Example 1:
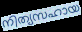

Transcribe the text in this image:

നിത്യസഹായ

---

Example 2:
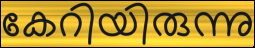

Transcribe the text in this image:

കേറിയിരുന്നു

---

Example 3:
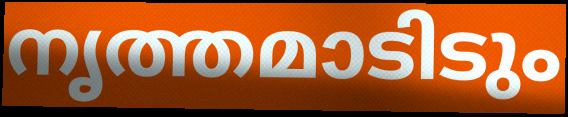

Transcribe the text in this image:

നൃത്തമാടിടും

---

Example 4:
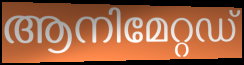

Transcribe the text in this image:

ആനിമേറ്റഡ്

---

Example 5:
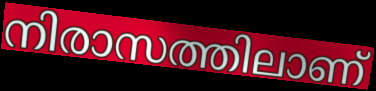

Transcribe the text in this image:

നിരാസത്തിലാണ്